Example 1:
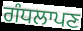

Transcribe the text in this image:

ਗੰਧਲਾਪਣ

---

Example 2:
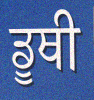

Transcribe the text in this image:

ਡੂਥੀ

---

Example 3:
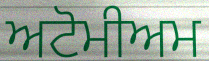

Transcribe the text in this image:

ਅਟੋਮੀਅਮ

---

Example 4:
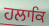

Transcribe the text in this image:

ਹਲਾਕਿ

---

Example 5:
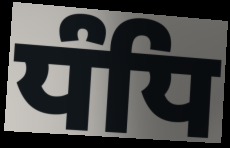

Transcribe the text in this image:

ਧੰਧਿ